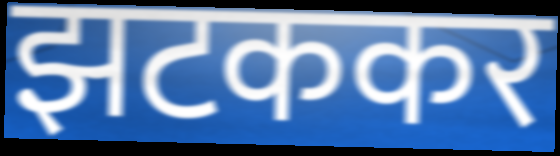
झटककर